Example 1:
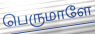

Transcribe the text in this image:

பெருமாளே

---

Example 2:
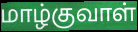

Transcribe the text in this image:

மாழ்குவாள்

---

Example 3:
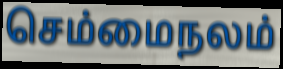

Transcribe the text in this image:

செம்மைநலம்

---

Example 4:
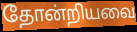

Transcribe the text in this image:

தோன்றியவை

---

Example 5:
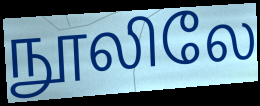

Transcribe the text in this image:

நூலிலே